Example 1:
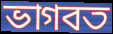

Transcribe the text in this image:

ভাগবত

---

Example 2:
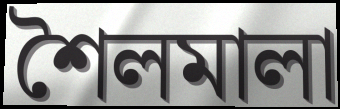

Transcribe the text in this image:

শৈলমালা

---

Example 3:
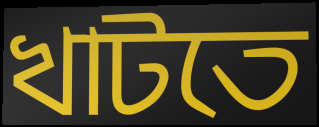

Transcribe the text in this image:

খাটতে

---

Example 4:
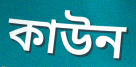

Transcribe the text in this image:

কাউন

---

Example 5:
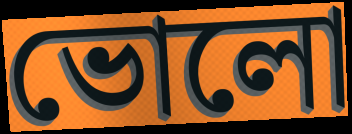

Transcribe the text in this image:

ভোলো